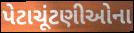
પેટાચૂંટણીઓના